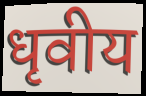
धृवीय